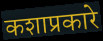
कशाप्रकारे